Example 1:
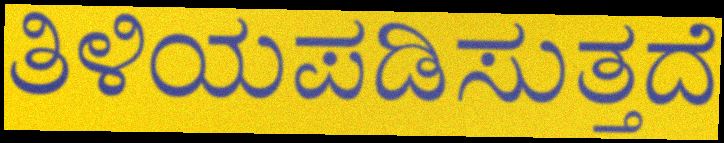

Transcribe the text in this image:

ತಿಳಿಯಪಡಿಸುತ್ತದೆ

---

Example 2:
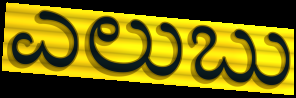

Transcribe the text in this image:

ಎಲುಬು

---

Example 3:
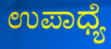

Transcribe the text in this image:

ಉಪಾಧ್ಯೆ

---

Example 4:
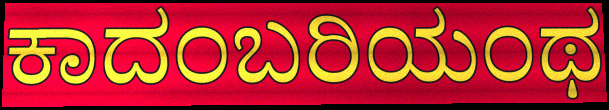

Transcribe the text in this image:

ಕಾದಂಬರಿಯಂಥ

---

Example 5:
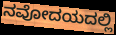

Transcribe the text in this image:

ನವೋದಯದಲ್ಲಿ